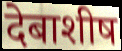
देबाशीष